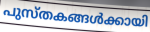
പുസ്തകങ്ങൾക്കായി